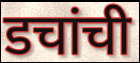
डचांची